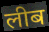
लीब